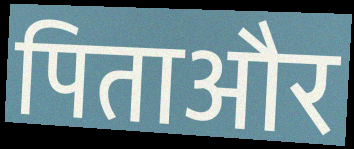
पिताऔर